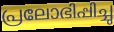
പ്രലോഭിപ്പിച്ചു